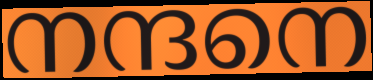
നന്ദനെ